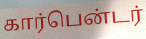
கார்பென்டர்